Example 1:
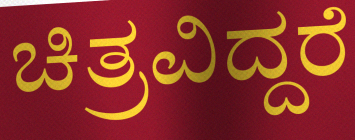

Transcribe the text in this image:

ಚಿತ್ರವಿದ್ದರೆ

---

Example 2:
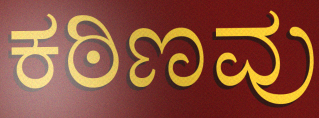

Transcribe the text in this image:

ಕಠಿಣವು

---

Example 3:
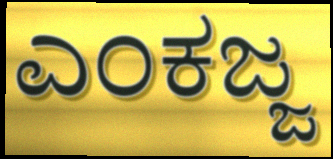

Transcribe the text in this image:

ಎಂಕಜ್ಜ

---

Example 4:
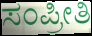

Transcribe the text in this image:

ಸಂಪ್ರೀತಿ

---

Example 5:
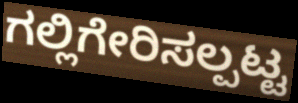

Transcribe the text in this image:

ಗಲ್ಲಿಗೇರಿಸಲ್ಪಟ್ಟ